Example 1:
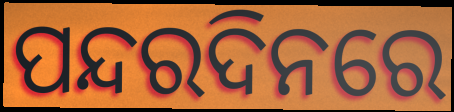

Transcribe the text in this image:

ପନ୍ଦରଦିନରେ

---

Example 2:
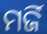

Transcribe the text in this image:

ମର୍ଜି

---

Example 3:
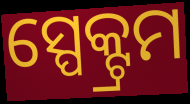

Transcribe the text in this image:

ସ୍ପେକ୍ଟ୍ରମ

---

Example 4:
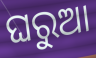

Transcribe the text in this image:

ଘରୁଆ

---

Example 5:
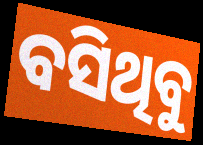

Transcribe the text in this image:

ବସିଥିବୁ